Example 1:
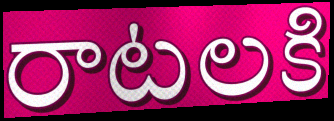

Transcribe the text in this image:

రాటలకి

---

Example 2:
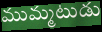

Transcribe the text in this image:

ముమ్మటుడు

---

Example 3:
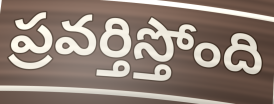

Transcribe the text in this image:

ప్రవర్తిస్తోంది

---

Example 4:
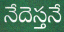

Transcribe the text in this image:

నేదెస్తనే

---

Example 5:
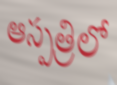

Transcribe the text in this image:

ఆస్పత్రిలో